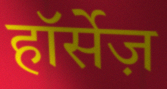
हॉर्सेज़